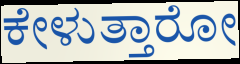
ಕೇಳುತ್ತಾರೋ